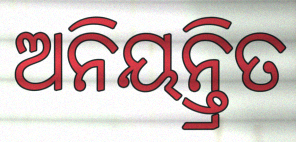
ଅନିୟନ୍ତ୍ରିତ